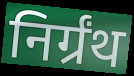
निर्ग्रंथ